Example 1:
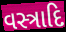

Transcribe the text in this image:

વસ્ત્રાદિ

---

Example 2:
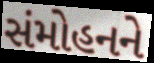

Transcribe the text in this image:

સંમોહનને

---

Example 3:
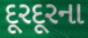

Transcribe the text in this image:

દૂરદૂરના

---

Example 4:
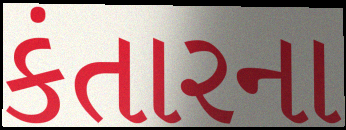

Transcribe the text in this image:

કંતારના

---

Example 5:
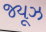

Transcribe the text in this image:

જ્યૂઝ